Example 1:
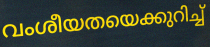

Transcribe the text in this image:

വംശീയതയെക്കുറിച്ച്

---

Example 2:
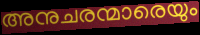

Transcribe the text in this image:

അനുചരന്മാരെയും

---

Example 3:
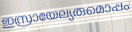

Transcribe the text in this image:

ഇസ്രായേല്യരുമൊപ്പം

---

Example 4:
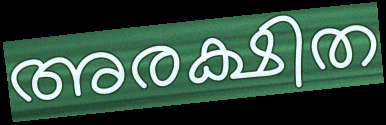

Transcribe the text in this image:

അരക്ഷിത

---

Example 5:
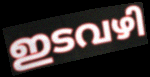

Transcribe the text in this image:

ഇടവഴി